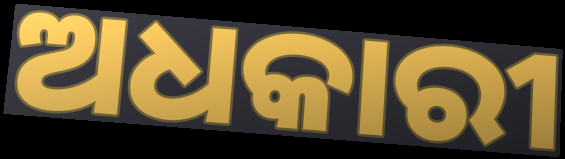
ଅଧକାରୀ